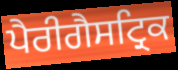
ਪੈਰੀਗੈਸਟ੍ਰਿਕ